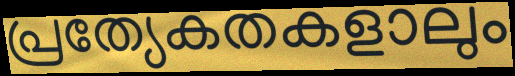
പ്രത്യേകതകളാലും